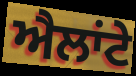
ਐਲਾਂਟੇ